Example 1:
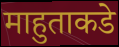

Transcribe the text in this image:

माहुताकडे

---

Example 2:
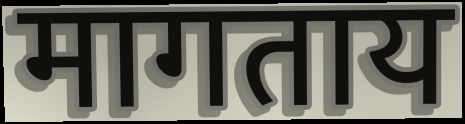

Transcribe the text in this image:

मागताय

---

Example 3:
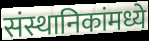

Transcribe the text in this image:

संस्थानिकांमध्ये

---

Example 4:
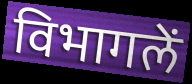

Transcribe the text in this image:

विभागलें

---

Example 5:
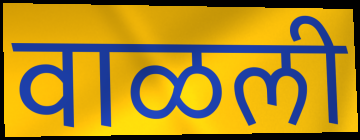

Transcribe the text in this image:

वाळली